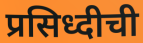
प्रसिध्दीची